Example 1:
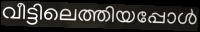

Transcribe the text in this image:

വീട്ടിലെത്തിയപ്പോൾ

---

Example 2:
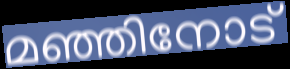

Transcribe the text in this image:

മഞ്ഞിനോട്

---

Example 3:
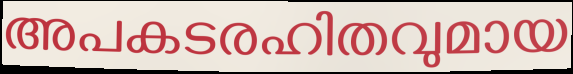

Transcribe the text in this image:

അപകടരഹിതവുമായ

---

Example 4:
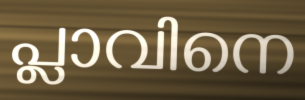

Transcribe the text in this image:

പ്ലാവിനെ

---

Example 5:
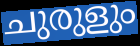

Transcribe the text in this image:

ചുരുളും